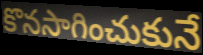
కొనసాగించుకునే